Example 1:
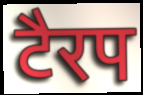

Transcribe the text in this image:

टैरप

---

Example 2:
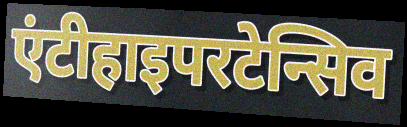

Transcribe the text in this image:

एंटीहाइपरटेन्सिव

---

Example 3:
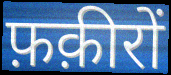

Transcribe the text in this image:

फ़क़ीरों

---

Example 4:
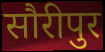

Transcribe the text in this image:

सौरीपुर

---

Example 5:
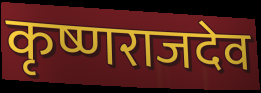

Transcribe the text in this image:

कृष्णराजदेव